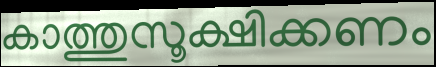
കാത്തുസൂക്ഷിക്കണം